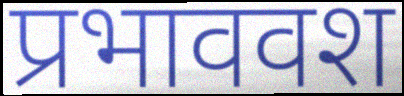
प्रभाववश